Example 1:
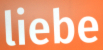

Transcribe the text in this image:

liebe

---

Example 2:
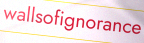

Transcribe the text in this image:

wallsofignorance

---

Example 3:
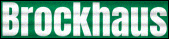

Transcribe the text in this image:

Brockhaus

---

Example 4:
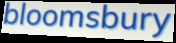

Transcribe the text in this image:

bloomsbury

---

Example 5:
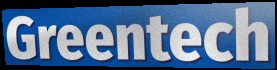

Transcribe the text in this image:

Greentech